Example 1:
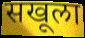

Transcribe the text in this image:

सखूला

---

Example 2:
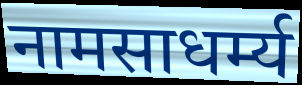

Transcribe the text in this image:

नामसाधर्म्य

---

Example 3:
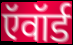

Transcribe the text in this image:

ऍवॉर्ड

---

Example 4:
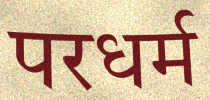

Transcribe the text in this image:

परधर्म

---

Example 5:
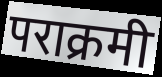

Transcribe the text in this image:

पराक्रमी